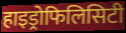
हाइड्रोफिलिसिटी